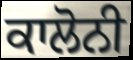
ਕਾਲੋਨੀ